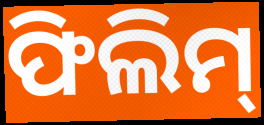
ଫିଲିମ୍